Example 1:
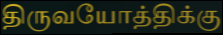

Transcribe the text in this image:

திருவயோத்திக்கு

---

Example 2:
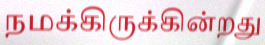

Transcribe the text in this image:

நமக்கிருக்கின்றது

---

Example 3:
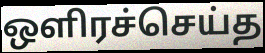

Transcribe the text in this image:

ஒளிரச்செய்த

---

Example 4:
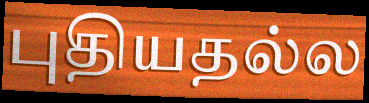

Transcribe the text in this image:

புதியதல்ல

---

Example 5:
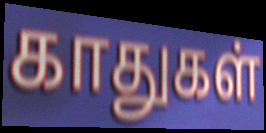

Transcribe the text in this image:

காதுகள்